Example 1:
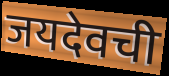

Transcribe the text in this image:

जयदेवची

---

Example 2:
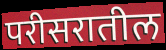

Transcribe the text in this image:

परीसरातील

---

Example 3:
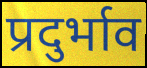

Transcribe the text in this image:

प्रदुर्भाव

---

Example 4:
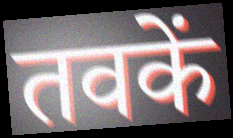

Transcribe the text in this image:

तवकें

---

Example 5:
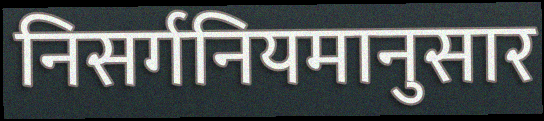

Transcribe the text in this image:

निसर्गनियमानुसार